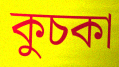
কুচকা